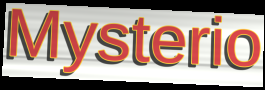
Mysterio